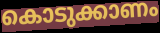
കൊടുക്കാണം